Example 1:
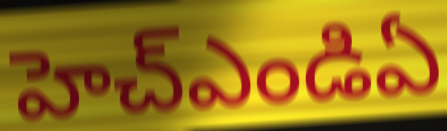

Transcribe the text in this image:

హెచ్ఎండిఏ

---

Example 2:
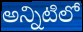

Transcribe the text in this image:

అన్నిటిలో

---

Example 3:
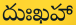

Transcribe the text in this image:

దుఃఖహా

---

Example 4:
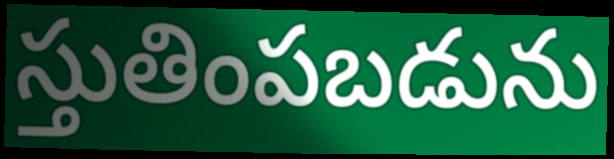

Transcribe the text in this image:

స్తుతింపబడును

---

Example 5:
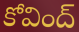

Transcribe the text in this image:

కోవింద్